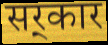
सर्कार